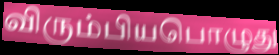
விரும்பியபொழுது